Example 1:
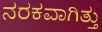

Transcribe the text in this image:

ನರಕವಾಗಿತ್ತು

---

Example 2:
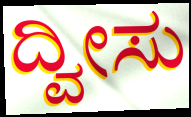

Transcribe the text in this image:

ದ್ವೀಸು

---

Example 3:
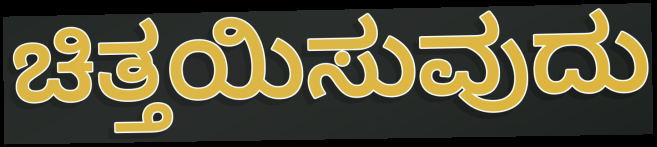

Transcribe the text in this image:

ಚಿತ್ತಯಿಸುವುದು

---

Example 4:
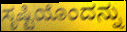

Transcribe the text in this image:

ಸೃಷ್ಟಿಯೊಂದನ್ನು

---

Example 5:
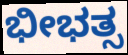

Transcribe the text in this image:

ಭೀಭತ್ಸ